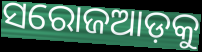
ସରୋଜଆଡ଼କୁ